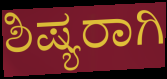
ಶಿಷ್ಯರಾಗಿ